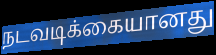
நடவடிக்கையானது